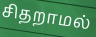
சிதறாமல்